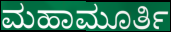
ಮಹಾಮೂರ್ತಿ